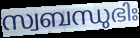
സ്വബന്ധുഭിഃ